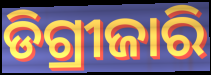
ଡିଗ୍ରୀଜାରି